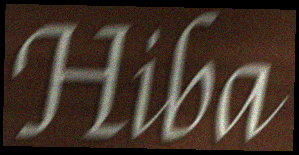
Hiba